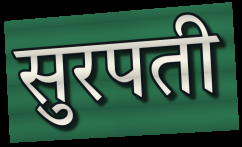
सुरपती